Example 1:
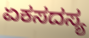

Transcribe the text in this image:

ಏಕಸದಸ್ಯ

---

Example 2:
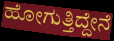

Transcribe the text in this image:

ಹೋಗುತ್ತಿದ್ದೇನೆ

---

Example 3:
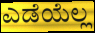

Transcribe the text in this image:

ಎಡೆಯೆಲ್ಲ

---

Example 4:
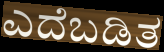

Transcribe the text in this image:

ಎದೆಬಡಿತ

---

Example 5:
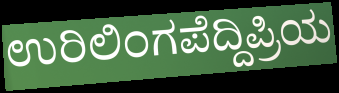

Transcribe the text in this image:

ಉರಿಲಿಂಗಪೆದ್ದಿಪ್ರಿಯ